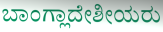
ಬಾಂಗ್ಲಾದೇಶೀಯರು